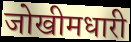
जोखीमधारी